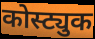
कोस्ट्युक